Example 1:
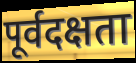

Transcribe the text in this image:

पूर्वदक्षता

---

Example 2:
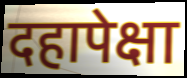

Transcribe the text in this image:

दहापेक्षा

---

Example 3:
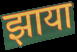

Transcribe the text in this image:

झाया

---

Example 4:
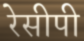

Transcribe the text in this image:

रेसीपी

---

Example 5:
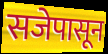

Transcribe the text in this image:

सजेपासून